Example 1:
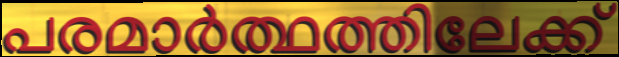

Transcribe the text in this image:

പരമാർത്ഥത്തിലേക്ക്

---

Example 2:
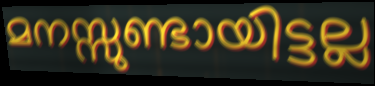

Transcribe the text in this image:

മനസ്സുണ്ടായിട്ടല്ല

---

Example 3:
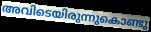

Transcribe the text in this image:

അവിടെയിരുന്നുകൊണ്ടു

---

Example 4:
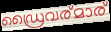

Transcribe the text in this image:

ഡ്രൈവര്മാര്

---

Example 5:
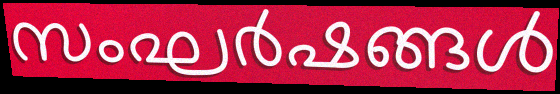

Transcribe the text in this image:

സംഘർഷങ്ങൾ